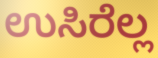
ಉಸಿರೆಲ್ಲ